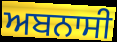
ਅਬਨਾਸੀ